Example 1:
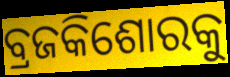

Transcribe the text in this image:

ବ୍ରଜକିଶୋରକୁ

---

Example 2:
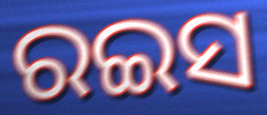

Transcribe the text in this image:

ରଇସ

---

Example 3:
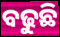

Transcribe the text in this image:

ବଢୁଛି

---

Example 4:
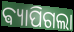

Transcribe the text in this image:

ଵ୍ୟାପିଗଲା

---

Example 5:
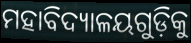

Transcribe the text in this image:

ମହାବିଦ୍ୟାଳୟଗୁଡ଼ିକୁ